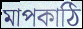
মাপকাঠি